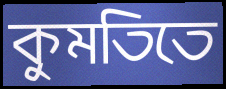
কুমতিতে